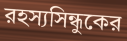
রহস্যসিন্ধুকের